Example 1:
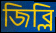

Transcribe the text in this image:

জিব্লি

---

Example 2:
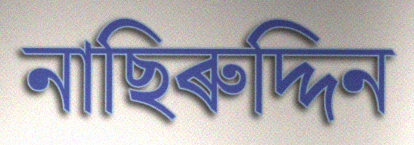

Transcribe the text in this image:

নাছিৰুদ্দিন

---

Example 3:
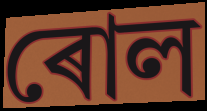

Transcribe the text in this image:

ৰোল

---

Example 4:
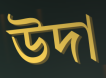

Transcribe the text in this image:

উদা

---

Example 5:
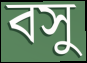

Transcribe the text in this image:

বসু